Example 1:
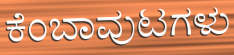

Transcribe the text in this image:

ಕೆಂಬಾವುಟಗಳು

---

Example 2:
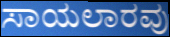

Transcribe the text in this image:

ಸಾಯಲಾರವು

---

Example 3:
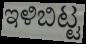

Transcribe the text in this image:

ಇಳಿಬಿಟ್ಟ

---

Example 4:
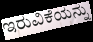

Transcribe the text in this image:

ಇರುವಿಕೆಯನ್ನು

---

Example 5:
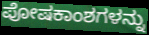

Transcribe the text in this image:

ಪೋಷಕಾಂಶಗಳನ್ನು